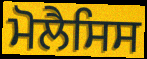
ਮੋਲੈਸਿਸ